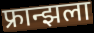
फ्रान्झला